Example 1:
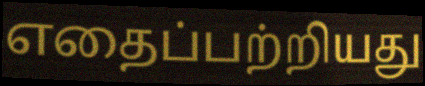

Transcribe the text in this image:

எதைப்பற்றியது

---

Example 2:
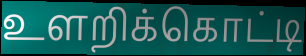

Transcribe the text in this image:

உளறிக்கொட்டி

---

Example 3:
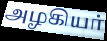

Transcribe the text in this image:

அழகியர்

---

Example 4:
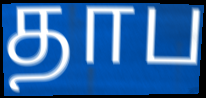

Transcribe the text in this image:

தாப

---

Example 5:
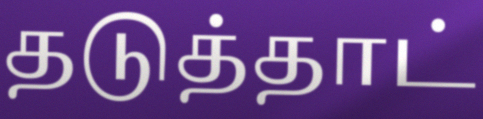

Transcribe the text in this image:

தடுத்தாட்